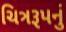
ચિત્રરૂપનું